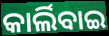
କାର୍ଲିବାଇ